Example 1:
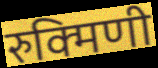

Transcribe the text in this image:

रुक्मिणी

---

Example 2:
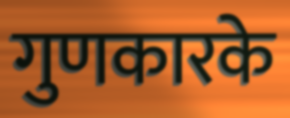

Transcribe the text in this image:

गुणकारके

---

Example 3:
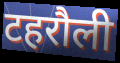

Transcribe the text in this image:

टहरौली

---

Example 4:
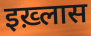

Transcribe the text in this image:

इख़्लास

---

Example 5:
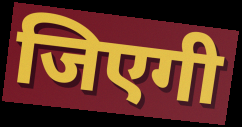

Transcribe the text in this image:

जिएगी